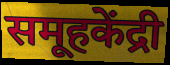
समूहकेंद्री